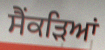
ਸੈਂਕੜਿਆਂ